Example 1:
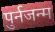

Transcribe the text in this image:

पुर्नजन्म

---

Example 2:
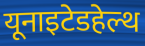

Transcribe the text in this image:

यूनाइटेडहेल्थ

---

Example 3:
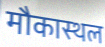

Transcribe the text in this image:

मौकास्थल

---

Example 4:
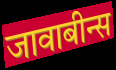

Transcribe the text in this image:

जावाबीन्स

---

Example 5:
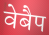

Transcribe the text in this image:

वेबैप